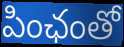
పింఛంతో